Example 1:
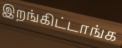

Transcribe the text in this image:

இறங்கிட்டாங்க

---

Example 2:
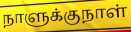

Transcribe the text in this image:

நாளுக்குநாள்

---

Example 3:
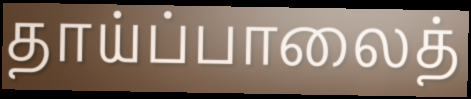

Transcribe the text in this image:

தாய்ப்பாலைத்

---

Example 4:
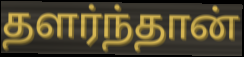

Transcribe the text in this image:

தளர்ந்தான்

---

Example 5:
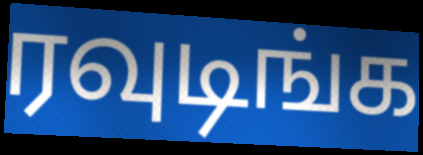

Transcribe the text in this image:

ரவுடிங்க